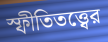
স্ফীতিতত্ত্বের